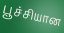
பூச்சியான